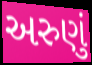
અરુણું